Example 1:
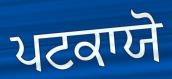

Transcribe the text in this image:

ਪਟਕਾਯੋ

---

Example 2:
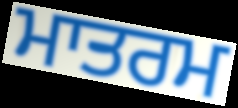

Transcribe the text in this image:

ਮਾਤਰਮ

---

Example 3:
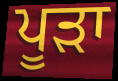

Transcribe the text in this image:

ਪੂੜਾ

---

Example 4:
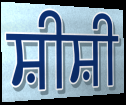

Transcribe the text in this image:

ਸ਼ੀਸ਼ੀ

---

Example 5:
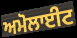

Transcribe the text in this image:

ਅਮੋਲਾਈਟ